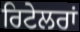
ਰਿਟੇਲਰਾਂ